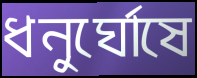
ধনুর্ঘোষে